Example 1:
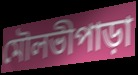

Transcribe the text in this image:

মৌলভীপাড়া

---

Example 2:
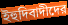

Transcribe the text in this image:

ইহুদিবাদীদের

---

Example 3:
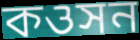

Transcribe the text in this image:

কওসন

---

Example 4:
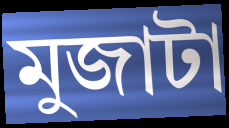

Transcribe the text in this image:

মুজাটা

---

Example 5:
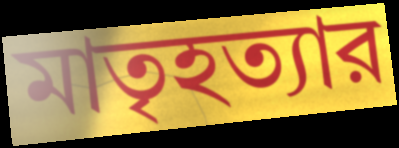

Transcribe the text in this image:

মাতৃহত্যার